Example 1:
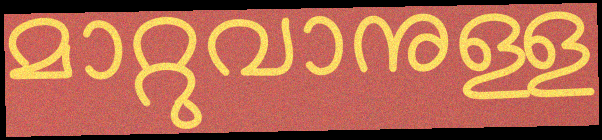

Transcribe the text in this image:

മാറ്റുവാനുള്ള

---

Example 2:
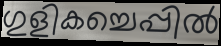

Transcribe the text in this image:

ഗുളികച്ചെപ്പിൽ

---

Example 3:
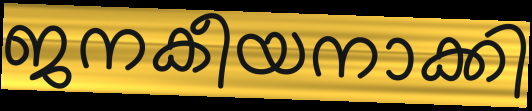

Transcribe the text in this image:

ജനകീയനാക്കി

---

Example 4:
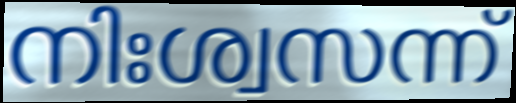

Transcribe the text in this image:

നിഃശ്വസന്ന്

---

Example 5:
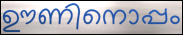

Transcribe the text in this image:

ഊണിനൊപ്പം